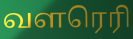
வளரெரி